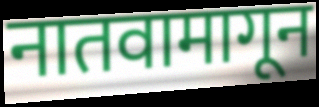
नातवामागून